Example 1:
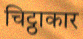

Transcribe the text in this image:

चिट्ठाकार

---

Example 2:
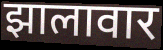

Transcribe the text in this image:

झालावार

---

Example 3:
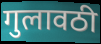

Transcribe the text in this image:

गुलावठी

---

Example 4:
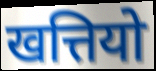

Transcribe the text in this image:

खत्तियो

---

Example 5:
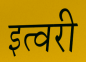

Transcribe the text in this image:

इत्वरी